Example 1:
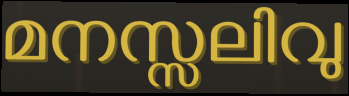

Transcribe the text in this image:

മനസ്സലിവു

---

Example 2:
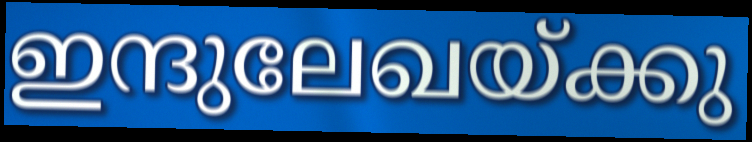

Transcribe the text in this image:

ഇന്ദുലേഖയ്ക്കു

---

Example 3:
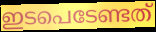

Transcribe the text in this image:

ഇടപെടേണ്ടത്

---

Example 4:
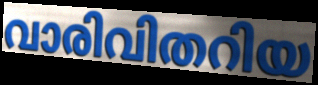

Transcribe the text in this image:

വാരിവിതറിയ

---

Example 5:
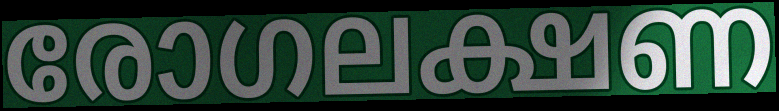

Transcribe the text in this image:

രോഗലക്ഷണ